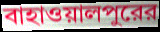
বাহাওয়ালপুরের